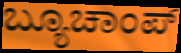
ಬ್ಯೂಚಾಂಪ್